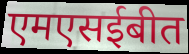
एमएसईबीत